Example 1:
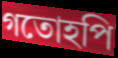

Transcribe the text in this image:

গতোহপি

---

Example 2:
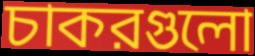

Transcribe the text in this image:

চাকরগুলো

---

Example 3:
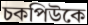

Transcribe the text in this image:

চকপিউকে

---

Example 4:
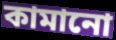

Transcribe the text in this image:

কামানো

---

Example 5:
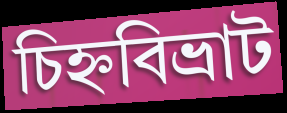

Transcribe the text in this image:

চিহ্নবিভ্রাট